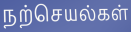
நற்செயல்கள்